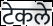
टेकले